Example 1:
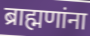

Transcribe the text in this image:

ब्राह्मणांना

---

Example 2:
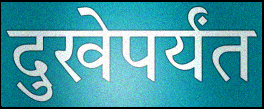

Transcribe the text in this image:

दुखेपर्यंत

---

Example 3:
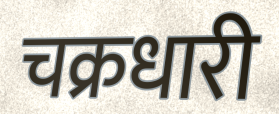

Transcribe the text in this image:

चक्रधारी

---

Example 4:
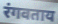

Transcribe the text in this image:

रंगवताय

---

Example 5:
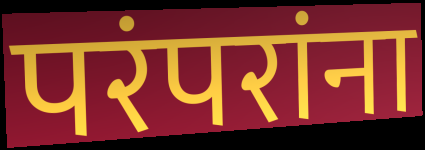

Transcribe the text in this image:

परंपरांना